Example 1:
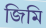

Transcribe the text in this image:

জিমি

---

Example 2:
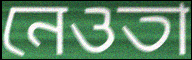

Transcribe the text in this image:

নেওতা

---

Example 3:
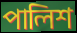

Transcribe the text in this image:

পালিশ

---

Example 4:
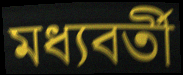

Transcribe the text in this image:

মধ্যবৰ্তী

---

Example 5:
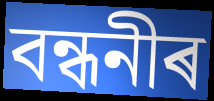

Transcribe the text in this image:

বন্ধনীৰ